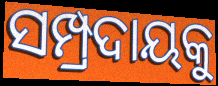
ସମ୍ପ୍ରଦାୟକୁ